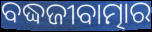
ବଦ୍ଧଜୀବାତ୍ମାର